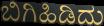
ಬಿಗಿಹಿಡಿದು